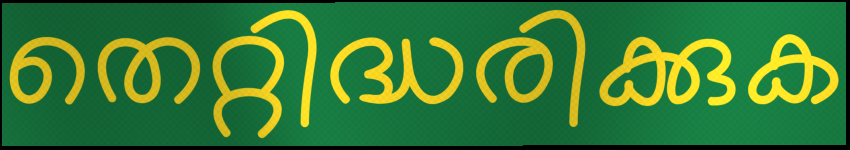
തെറ്റിദ്ധരിക്കുക